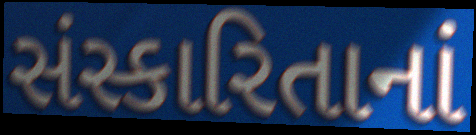
સંસ્કારિતાનાં